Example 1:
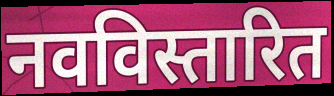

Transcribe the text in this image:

नवविस्तारित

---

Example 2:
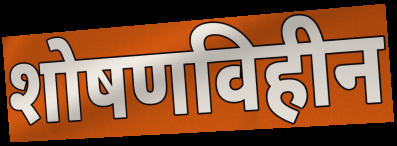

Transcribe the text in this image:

शोषणविहीन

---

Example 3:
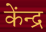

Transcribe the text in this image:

केंन्द्र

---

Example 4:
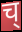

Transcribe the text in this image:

च्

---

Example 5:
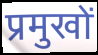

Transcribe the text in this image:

प्रमुखों